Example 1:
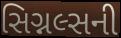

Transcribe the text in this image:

સિગ્નલ્સની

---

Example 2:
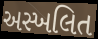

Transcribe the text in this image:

અસ્ખલિત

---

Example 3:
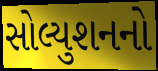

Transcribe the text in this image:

સોલ્યુશનનો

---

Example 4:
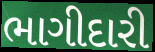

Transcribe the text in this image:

ભાગીદારી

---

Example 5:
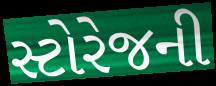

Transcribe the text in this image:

સ્ટોરેજની